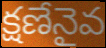
క్షణేనైవ